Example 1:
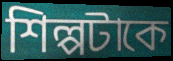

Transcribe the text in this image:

শিল্পটাকে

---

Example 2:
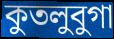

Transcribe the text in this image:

কুতলুবুগা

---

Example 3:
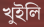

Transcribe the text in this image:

খুইলি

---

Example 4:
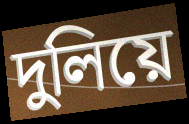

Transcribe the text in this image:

দুলিয়ে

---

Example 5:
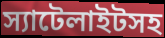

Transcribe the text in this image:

স্যাটেলাইটসহ